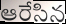
ఆరేసిన